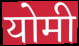
योमी